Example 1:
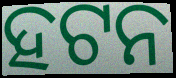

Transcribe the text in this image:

ହଟନ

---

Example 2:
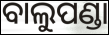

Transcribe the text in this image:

ବାଲୁପଣ୍ଡା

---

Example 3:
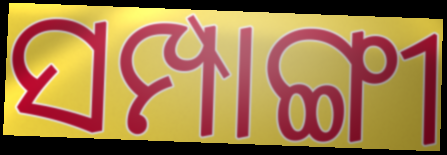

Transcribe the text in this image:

ସମ୍ପାଙ୍ଗୀ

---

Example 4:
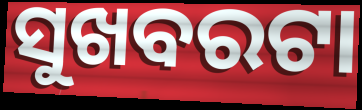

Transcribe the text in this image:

ସୁଖବରଟା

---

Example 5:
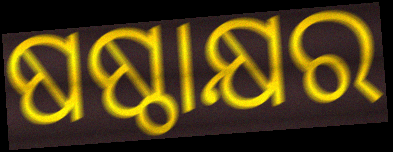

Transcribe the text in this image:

ଷଷ୍ଠାକ୍ଷର